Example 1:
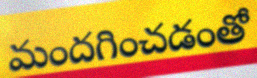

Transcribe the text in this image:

మందగించడంతో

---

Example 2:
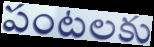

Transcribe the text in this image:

పంటలకు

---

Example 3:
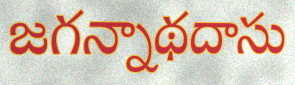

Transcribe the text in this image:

జగన్నాథదాసు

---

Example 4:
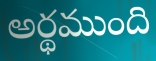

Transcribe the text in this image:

అర్థముంది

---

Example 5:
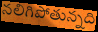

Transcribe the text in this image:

నలిగిపోతున్నది